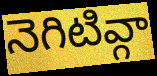
నెగిటివ్గా